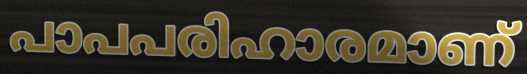
പാപപരിഹാരമാണ്